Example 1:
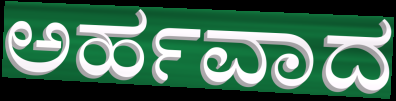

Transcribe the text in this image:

ಅರ್ಹವಾದ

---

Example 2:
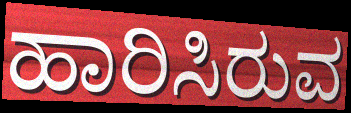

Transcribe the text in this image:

ಹಾರಿಸಿರುವ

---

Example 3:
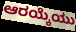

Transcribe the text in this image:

ಆರಯ್ಕೆಯು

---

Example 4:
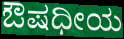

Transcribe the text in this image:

ಔಷಧೀಯ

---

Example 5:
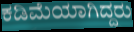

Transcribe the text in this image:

ಕಡಿಮೆಯಾಗಿದ್ದರು